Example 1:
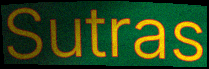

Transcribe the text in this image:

Sutras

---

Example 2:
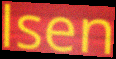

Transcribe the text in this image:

Isen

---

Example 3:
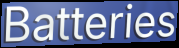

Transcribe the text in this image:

Batteries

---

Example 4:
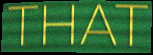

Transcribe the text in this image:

THAT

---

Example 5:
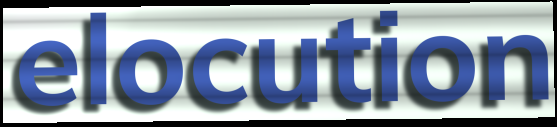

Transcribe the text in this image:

elocution